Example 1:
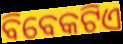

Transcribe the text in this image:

ବିବେକଟିଏ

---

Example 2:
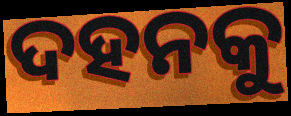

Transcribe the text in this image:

ଦହନକୁ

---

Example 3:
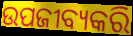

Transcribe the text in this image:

ଉପଜୀବ୍ୟକରି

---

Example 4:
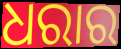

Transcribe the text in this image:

ଧରାର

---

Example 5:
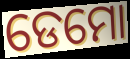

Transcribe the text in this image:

ଡେମୋ